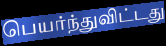
பெயர்ந்துவிட்டது